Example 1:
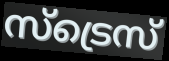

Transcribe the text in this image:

സ്ട്രെസ്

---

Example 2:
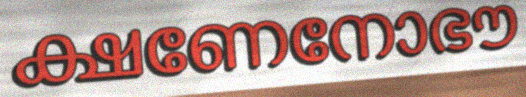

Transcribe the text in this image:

ക്ഷണേനോഭൗ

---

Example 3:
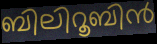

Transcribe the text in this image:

ബിലിറൂബിൻ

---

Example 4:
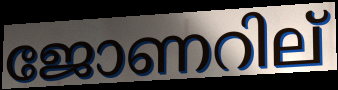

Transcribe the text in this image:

ജോണറില്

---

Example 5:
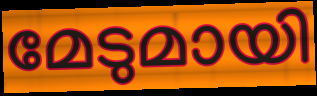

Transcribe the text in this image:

മേടുമായി